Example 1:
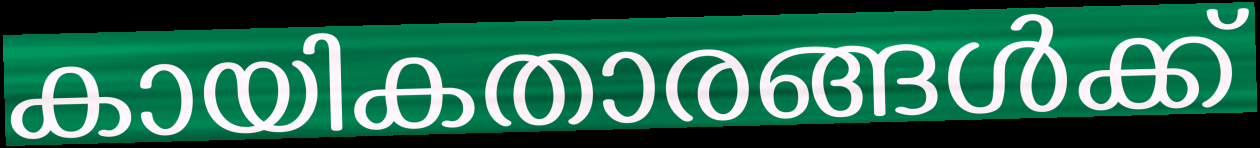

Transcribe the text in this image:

കായികതാരങ്ങൾക്ക്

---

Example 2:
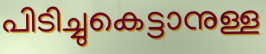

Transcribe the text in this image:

പിടിച്ചുകെട്ടാനുള്ള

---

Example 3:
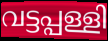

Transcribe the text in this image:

വട്ടപ്പള്ളി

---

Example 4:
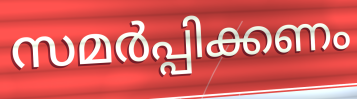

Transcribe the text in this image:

സമർപ്പിക്കണം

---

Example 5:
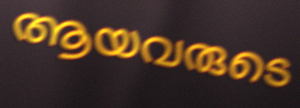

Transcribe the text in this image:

ആയവരുടെ